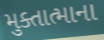
મુક્તાત્માના